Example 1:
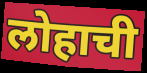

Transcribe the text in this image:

लोहाची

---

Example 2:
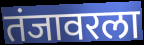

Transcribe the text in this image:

तंजावरला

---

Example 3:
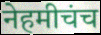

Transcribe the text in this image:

नेहमीचंच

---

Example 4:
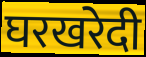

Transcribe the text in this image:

घरखरेदी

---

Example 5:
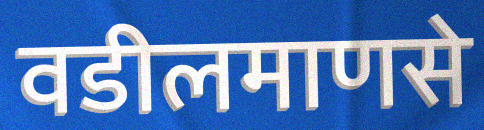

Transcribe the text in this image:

वडीलमाणसे